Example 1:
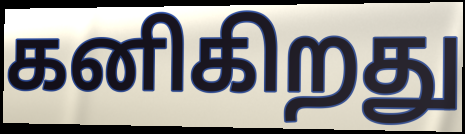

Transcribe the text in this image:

கனிகிறது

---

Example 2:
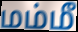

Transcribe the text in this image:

மம்மீ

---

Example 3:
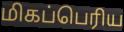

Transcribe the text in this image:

மிகப்பெரிய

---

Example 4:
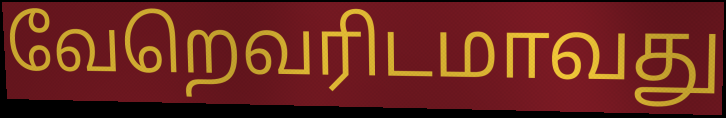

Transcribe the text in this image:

வேறெவரிடமாவது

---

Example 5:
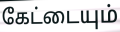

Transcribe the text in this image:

கேட்டையும்